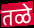
तळे